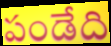
పండేది